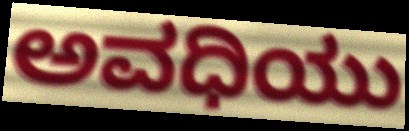
ಅವಧಿಯು